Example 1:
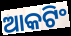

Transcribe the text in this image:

ଆକଟିଂ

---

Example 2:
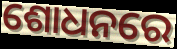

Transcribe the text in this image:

ଶୋଧନରେ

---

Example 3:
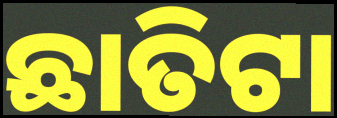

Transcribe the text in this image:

ଛାତିଟା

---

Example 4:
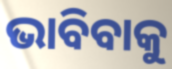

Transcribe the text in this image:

ଭାବିବାକୁ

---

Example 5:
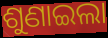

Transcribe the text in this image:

ଶୁଣାଇଲା